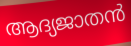
ആദ്യജാതൻ